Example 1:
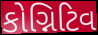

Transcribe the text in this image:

કોગ્નિટિવ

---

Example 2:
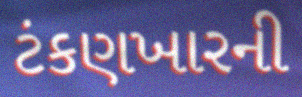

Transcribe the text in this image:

ટંકણખારની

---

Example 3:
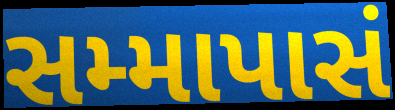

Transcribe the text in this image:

સમ્માપાસં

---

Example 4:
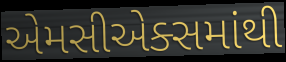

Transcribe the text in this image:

એમસીએક્સમાંથી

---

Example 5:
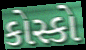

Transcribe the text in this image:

કોસ્કો